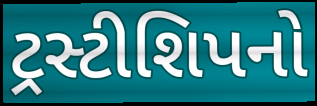
ટ્રસ્ટીશિપનો